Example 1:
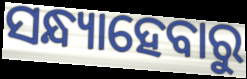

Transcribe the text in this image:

ସନ୍ଧ୍ୟାହେବାରୁ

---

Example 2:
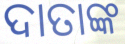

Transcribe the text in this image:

ଦାତାଙ୍କ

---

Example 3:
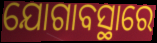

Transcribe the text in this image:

ଯୋଗାବସ୍ଥାରେ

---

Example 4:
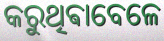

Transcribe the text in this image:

କରୁଥିଵାବେଳେ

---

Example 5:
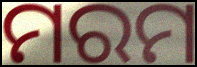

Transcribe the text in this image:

ମରମ